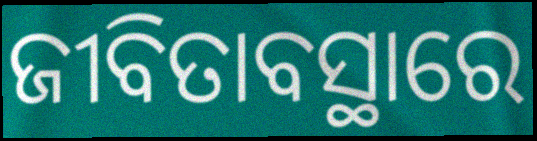
ଜୀବିତାବସ୍ଥାରେ